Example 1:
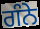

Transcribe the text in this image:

ਗੰਨੇ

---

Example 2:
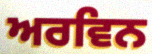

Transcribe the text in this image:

ਅਰਵਿਨ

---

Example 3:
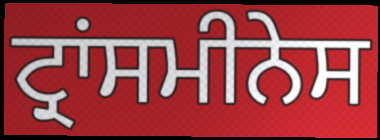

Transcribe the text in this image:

ਟ੍ਰਾਂਸਮੀਨੇਸ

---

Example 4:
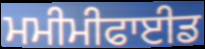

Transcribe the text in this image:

ਮਮੀਮੀਫਾਈਡ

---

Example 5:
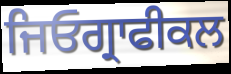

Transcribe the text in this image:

ਜਿਓਗ੍ਰਾਫੀਕਲ